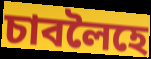
চাবলৈহে